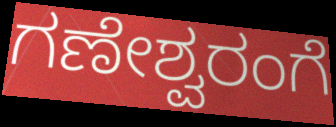
ಗಣೇಶ್ವರಂಗೆ